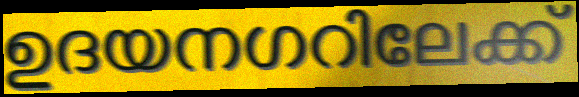
ഉദയനഗറിലേക്ക്